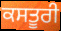
ਕਸਤੂਰੀ